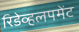
रिडेव्हलपमेंट